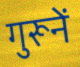
गुरूनें